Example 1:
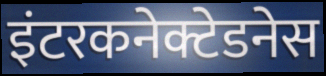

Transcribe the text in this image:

इंटरकनेक्टेडनेस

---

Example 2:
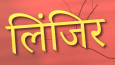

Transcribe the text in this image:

लिंजिर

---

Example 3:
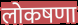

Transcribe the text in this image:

लोकषणा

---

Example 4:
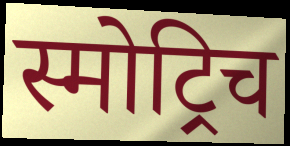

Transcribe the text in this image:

स्मोट्रिच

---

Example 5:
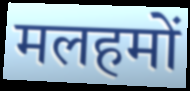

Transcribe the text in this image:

मलहमों